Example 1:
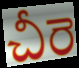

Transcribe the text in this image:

చీరె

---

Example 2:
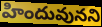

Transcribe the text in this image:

హిందువునని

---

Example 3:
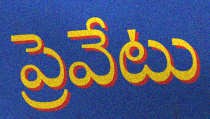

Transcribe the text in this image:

ప్రెవేటు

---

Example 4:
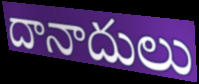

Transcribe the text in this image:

దానాదులు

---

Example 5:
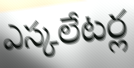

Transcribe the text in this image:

ఎస్కలేటర్ల